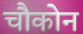
चौकोन